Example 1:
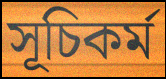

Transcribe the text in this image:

সূচিকৰ্ম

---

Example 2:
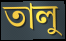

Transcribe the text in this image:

তালু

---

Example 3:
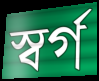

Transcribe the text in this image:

স্বৰ্গ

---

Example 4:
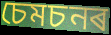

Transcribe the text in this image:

চেমচনৰ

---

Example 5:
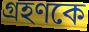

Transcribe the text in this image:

গ্ৰহণকে